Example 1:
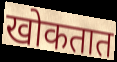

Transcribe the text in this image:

खोकतात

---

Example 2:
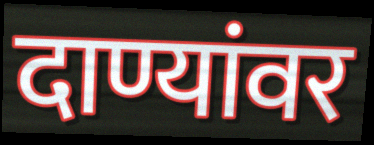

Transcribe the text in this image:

दाण्यांवर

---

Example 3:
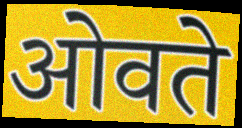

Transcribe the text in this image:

ओवते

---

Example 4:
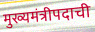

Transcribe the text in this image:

मुख्यमंत्रीपदाची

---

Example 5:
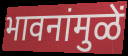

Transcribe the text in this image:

भावनांमुळें